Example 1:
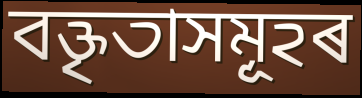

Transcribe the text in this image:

বক্তৃতাসমূহৰ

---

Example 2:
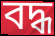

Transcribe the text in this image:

বদ্ধ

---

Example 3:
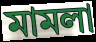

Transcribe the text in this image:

মামলা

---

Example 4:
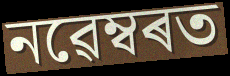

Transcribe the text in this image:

নৱেম্বৰত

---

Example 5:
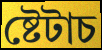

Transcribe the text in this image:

ষ্টেটাচ